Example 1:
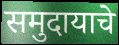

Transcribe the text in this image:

समुदायाचे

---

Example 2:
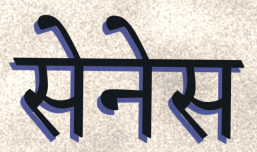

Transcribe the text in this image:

सेनेस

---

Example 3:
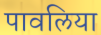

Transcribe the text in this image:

पावलिया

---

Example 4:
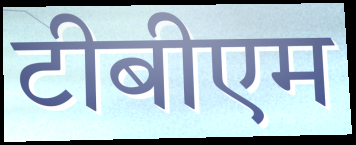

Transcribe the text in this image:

टीबीएम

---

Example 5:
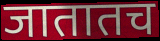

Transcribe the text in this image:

जातातच